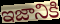
ఇజానికి